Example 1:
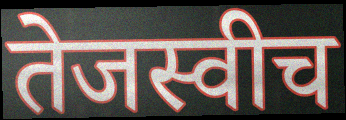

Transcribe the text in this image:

तेजस्वीच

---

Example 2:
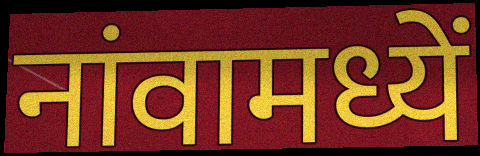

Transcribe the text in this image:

नांवामध्यें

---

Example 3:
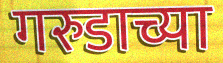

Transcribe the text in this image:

गरुडाच्या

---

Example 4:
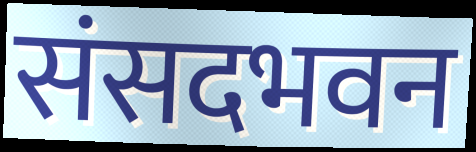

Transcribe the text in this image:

संसदभवन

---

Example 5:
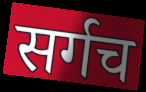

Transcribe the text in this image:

सर्गच